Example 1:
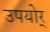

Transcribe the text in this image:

उपयोर्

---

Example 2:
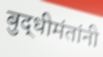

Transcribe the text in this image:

बुद्धीमंतांनी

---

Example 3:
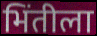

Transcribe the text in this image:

भिंतीला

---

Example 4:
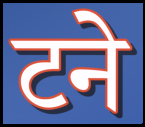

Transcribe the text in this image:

टने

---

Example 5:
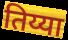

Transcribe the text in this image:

तिय्या